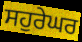
ਸਹੁਰੇਘਰ